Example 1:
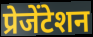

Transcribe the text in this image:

प्रेजेंटेशन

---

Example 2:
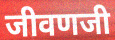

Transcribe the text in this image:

जीवणजी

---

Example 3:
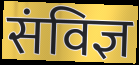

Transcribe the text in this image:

संविज्ञ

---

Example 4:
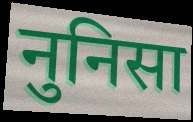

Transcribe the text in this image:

नुनिसा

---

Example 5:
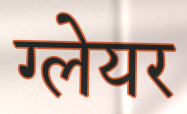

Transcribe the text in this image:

ग्लेयर